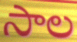
సాల